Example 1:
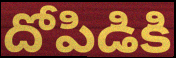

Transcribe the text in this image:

దోపిడికి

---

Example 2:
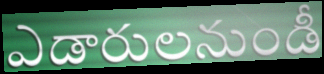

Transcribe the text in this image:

ఎడారులనుండీ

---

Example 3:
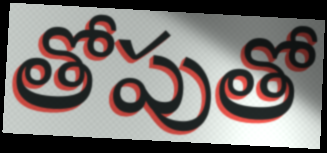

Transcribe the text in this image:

తోపుతో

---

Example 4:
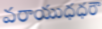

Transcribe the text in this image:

వరాయుధధరౌ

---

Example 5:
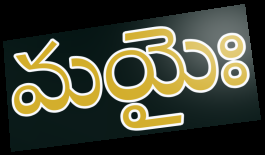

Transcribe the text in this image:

మయైః